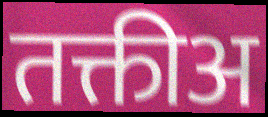
तक्तीअ